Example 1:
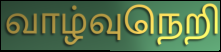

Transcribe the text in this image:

வாழ்வுநெறி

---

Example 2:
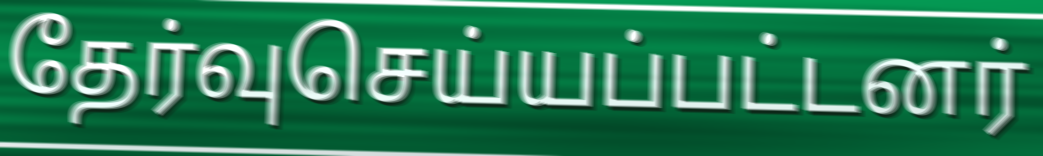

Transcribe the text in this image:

தேர்வுசெய்யப்பட்டனர்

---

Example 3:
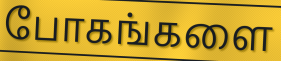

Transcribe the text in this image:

போகங்களை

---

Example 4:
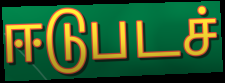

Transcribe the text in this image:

ஈடுபடச்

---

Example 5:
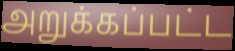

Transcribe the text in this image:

அறுக்கப்பட்ட